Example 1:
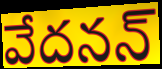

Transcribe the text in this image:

వేదనన్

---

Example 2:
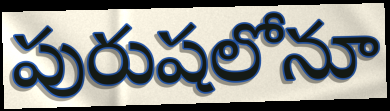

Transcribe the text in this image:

పురుషలోనూ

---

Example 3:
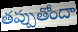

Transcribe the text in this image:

తప్పుతోందా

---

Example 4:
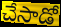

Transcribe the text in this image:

చేసాడో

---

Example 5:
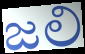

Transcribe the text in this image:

జలి